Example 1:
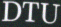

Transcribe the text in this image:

DTU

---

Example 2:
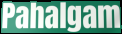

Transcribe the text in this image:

Pahalgam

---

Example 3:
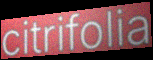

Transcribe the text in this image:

citrifolia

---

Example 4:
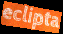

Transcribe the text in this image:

eclipta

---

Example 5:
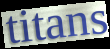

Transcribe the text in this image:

titans